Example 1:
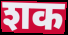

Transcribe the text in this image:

शक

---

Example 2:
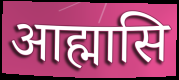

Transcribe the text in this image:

आह्मासि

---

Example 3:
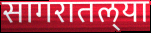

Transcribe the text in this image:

सागरातल्या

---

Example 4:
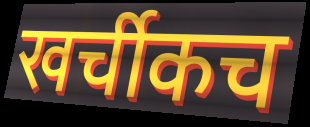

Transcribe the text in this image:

खर्चीकच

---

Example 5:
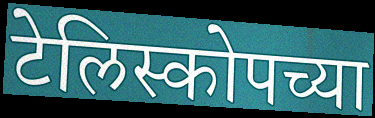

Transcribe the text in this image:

टेलिस्कोपच्या